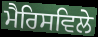
ਮੈਰਿਸਵਿਲੇ